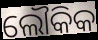
ଲୌକିକ